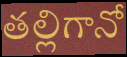
తల్లిగానో